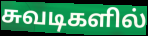
சுவடிகளில்